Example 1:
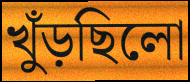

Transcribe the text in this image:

খুঁড়ছিলো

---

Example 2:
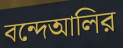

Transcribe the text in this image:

বন্দেআলির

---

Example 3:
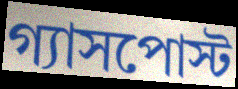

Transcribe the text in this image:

গ্যাসপোস্ট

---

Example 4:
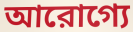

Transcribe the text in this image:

আরোগ্যে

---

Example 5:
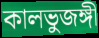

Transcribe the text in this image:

কালভুজঙ্গী